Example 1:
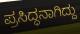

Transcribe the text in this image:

ಪ್ರಸಿದ್ಧನಾಗಿದ್ದು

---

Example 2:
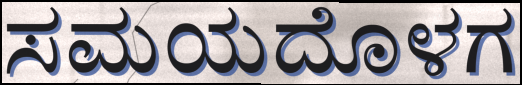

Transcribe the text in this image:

ಸಮಯದೊಳಗ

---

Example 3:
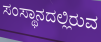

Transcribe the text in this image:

ಸಂಸ್ಥಾನದಲ್ಲಿರುವ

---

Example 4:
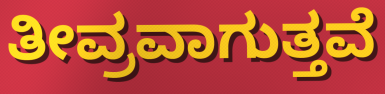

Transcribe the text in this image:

ತೀವ್ರವಾಗುತ್ತವೆ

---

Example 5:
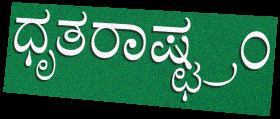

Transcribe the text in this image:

ಧೃತರಾಷ್ಟ್ರಂ